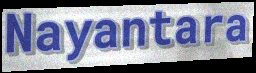
Nayantara